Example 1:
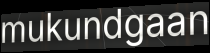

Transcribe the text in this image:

mukundgaan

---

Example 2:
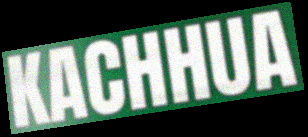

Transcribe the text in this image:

KACHHUA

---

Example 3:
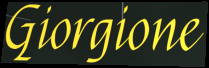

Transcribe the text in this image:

Giorgione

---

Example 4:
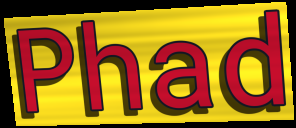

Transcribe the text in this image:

Phad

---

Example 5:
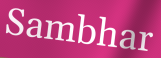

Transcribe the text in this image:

Sambhar